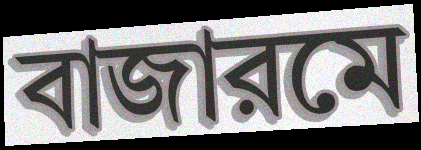
বাজারমে